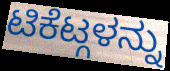
ಟಿಕೆಟ್ಗಳನ್ನು